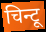
चिन्टू